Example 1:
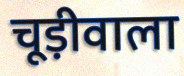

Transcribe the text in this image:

चूड़ीवाला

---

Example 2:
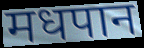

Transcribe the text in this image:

मधपान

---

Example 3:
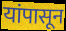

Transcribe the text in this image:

यांपासून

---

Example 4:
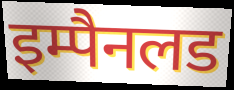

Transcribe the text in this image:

इम्पैनलड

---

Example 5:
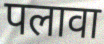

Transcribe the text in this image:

पलावा